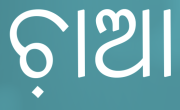
ଚ଼ାଆ